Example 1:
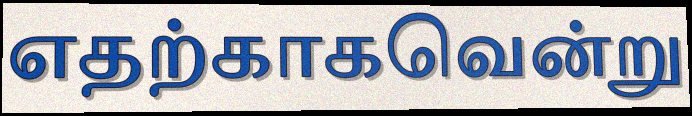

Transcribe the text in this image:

எதற்காகவென்று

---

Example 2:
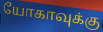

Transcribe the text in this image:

யோகாவுக்கு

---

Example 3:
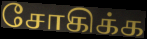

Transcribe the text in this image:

சோகிக்க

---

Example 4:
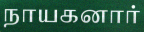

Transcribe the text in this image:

நாயகனார்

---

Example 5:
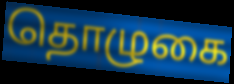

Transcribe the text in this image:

தொழுகை